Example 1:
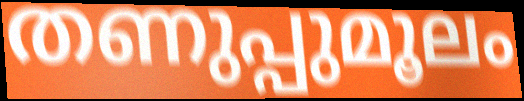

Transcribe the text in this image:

തണുപ്പുമൂലം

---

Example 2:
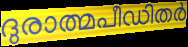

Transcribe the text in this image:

ദുരാത്മപീഡിതർ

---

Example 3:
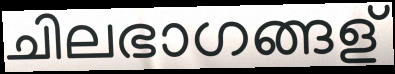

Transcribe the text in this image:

ചിലഭാഗങ്ങള്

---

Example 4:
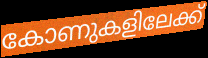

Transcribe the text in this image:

കോണുകളിലേക്ക്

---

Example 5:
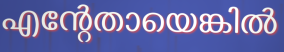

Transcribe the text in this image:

എന്റേതായെങ്കിൽ